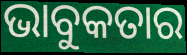
ଭାବୁକତାର